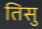
तिसु